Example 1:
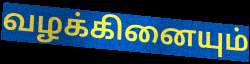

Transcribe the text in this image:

வழக்கினையும்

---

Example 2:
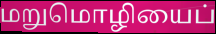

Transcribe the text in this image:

மறுமொழியைப்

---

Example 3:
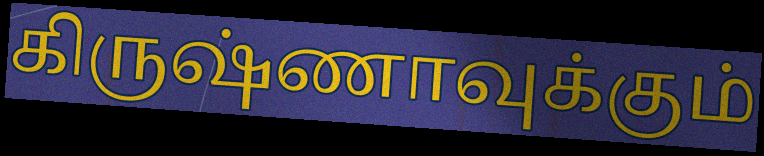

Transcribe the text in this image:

கிருஷ்ணாவுக்கும்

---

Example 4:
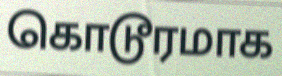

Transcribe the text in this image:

கொடூரமாக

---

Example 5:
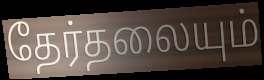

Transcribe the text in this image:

தேர்தலையும்